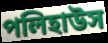
পলিহাউস